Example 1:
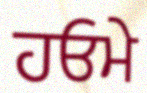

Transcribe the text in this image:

ਹਓਮੇ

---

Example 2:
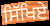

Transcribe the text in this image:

ਸਿੱਖਿਏ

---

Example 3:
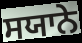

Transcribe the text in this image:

ਸਯਾਨੇ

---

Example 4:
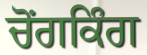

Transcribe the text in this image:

ਚੋਂਗਕਿੰਗ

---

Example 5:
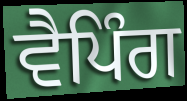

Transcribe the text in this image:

ਵੈਪਿੰਗ